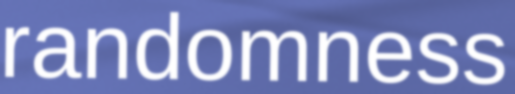
randomness